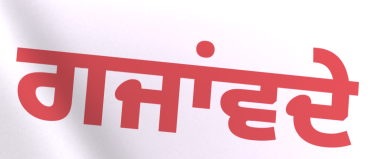
ਗਜਾਂਵਦੇ